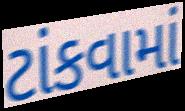
ટાંકવામાં